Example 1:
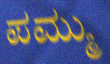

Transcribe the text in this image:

ಪಮ್ಮು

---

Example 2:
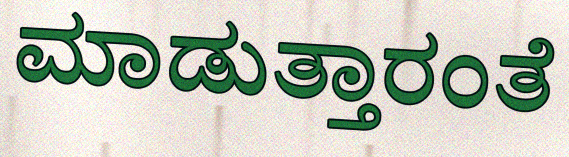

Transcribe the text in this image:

ಮಾಡುತ್ತಾರಂತೆ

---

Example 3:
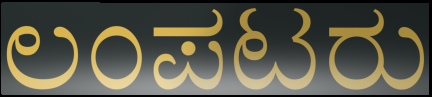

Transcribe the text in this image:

ಲಂಪಟರು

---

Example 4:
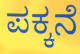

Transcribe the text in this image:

ಪಕ್ಕನೆ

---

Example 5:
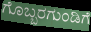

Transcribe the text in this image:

ಗೊಬ್ಬರಗುಂಡಿಗೆ